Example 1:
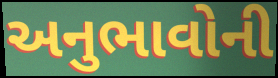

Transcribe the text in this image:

અનુભાવોની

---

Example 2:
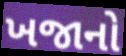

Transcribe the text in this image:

ખજાનો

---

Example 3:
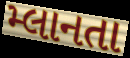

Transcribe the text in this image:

મ્લાનતા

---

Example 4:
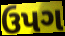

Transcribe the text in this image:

ઉપગ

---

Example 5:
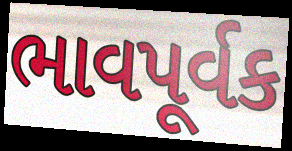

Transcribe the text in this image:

ભાવપૂર્વક